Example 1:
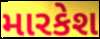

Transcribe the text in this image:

મારકેશ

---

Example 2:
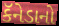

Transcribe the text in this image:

કૅનેડાનો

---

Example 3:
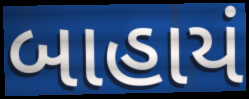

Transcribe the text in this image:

બાહાયં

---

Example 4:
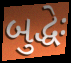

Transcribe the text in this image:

બુદ્ધેઃ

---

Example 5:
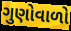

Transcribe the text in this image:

ગુણોવાળો